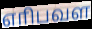
எரிபவள